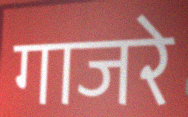
गाजरे